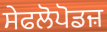
ਸੇਫਲੋਪੋਡਜ਼